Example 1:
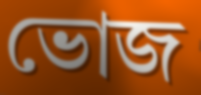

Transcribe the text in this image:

ভোজ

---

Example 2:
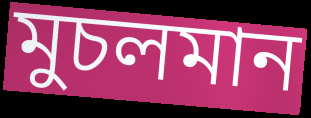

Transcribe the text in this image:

মুচলমান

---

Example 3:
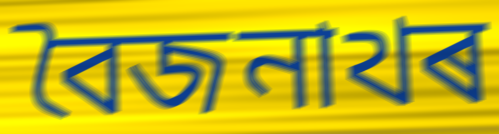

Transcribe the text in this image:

বৈজনাথৰ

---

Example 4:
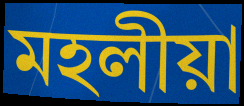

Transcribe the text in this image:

মহলীয়া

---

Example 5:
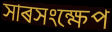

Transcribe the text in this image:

সাৰসংক্ষেপ